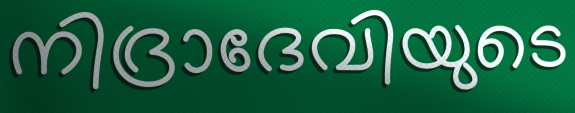
നിദ്രാദേവിയുടെ